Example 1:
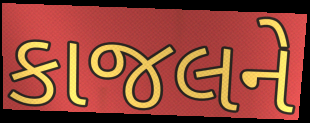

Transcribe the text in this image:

કાજલને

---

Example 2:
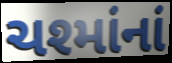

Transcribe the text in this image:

ચશ્માંનાં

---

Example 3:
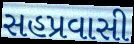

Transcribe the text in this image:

સહપ્રવાસી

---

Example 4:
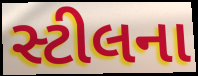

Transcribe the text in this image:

સ્ટીલના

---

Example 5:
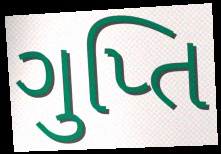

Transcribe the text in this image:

ગુપ્તિ